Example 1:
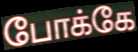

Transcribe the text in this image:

போக்கே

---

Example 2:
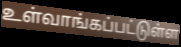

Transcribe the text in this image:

உள்வாங்கப்பட்டுள்ள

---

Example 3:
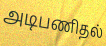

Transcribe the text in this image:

அடிபணிதல்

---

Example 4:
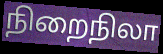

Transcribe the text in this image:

நிறைநிலா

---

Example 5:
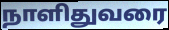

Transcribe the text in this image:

நாளிதுவரை